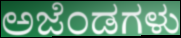
ಅಜೆಂಡಗಳು